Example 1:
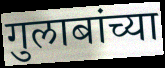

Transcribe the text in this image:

गुलाबांच्या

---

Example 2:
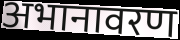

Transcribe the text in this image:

अभानावरण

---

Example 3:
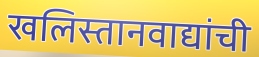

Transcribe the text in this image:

खलिस्तानवाद्यांची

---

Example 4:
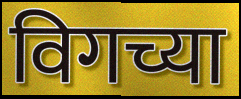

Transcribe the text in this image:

विगच्या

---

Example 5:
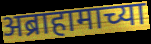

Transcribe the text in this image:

अब्राहामाच्या